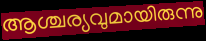
ആശ്ചര്യവുമായിരുന്നു